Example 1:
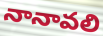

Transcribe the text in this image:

నానావలి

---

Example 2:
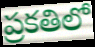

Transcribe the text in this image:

ప్రకతిలో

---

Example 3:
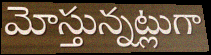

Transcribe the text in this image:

మోస్తున్నట్లుగా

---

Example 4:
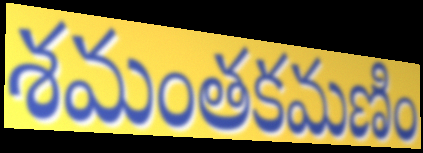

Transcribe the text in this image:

శమంతకమణిం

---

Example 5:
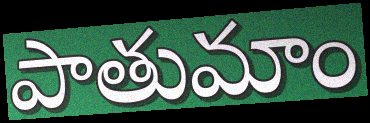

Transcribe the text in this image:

పాతుమాం